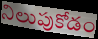
నిలుపుకోడం